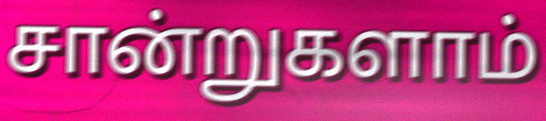
சான்றுகளாம்